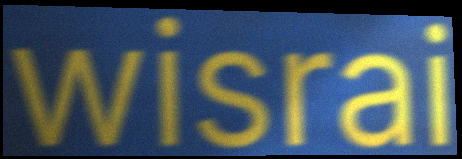
wisrai